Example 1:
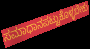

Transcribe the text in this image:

ಸಮಾಧಾನಪಟ್ಟುಕೊಳ್ಳಬೇಕು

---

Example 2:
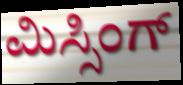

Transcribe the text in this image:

ಮಿಸ್ಸಿಂಗ್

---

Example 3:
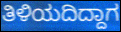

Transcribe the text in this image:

ತಿಳಿಯದಿದ್ದಾಗ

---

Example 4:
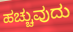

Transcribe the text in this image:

ಹಚ್ಚುವುದು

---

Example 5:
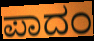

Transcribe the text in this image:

ಪಾದಂ